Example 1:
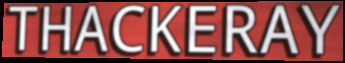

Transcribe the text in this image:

THACKERAY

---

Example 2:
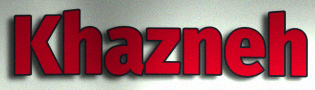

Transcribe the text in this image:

Khazneh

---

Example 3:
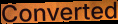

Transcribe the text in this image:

Converted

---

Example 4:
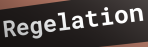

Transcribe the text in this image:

Regelation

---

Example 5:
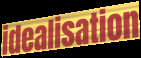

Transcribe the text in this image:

idealisation